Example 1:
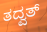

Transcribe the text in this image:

ತದ್ವತ್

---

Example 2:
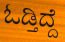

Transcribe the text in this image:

ಓಡ್ತಿದ್ದೆ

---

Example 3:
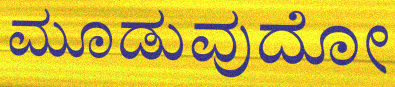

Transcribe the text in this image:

ಮೂಡುವುದೋ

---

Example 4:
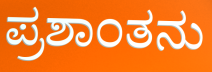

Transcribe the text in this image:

ಪ್ರಶಾಂತನು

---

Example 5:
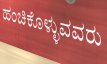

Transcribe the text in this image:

ಹಂಚಿಕೊಳ್ಳುವವರು